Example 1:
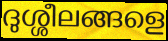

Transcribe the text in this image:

ദുശ്ശീലങ്ങളെ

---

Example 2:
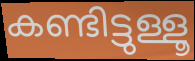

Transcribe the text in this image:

കണ്ടിട്ടുള്ളൂ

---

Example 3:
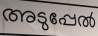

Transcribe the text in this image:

അടുപ്പേൽ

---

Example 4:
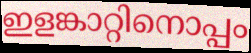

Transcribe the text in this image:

ഇളങ്കാറ്റിനൊപ്പം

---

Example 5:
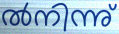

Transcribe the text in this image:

ൽനിന്നു്